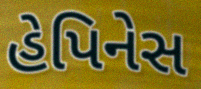
હેપિનેસ